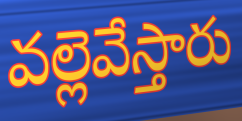
వల్లెవేస్తారు